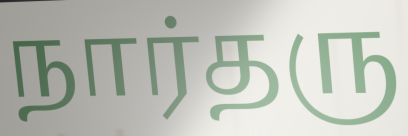
நார்தரு